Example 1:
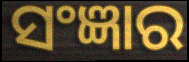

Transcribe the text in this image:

ସଂଜ୍ଞାର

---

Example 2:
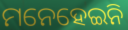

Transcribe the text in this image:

ମନେହେଇନି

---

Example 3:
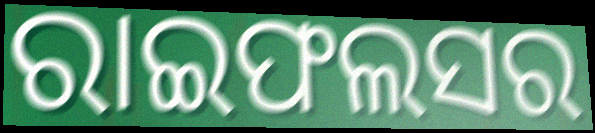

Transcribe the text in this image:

ରାଇଫଲସର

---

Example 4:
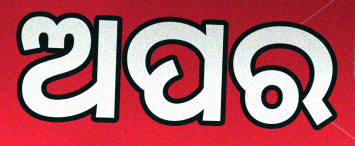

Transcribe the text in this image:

ଅପର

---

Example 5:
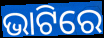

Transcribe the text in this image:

ଭାଟିରେ